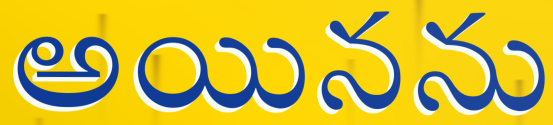
అయినను